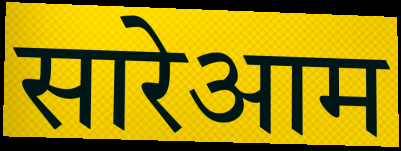
सारेआम